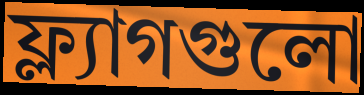
ফ্ল্যাগগুলো